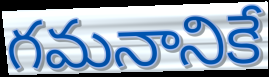
గమనానికే